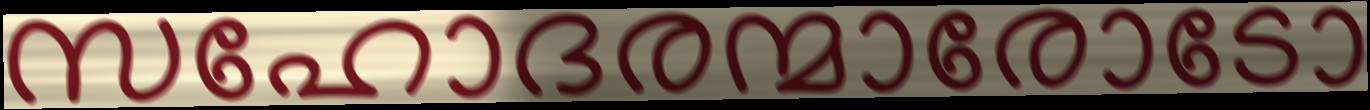
സഹോദരന്മാരോടോ